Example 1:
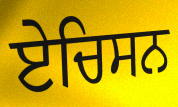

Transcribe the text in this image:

ਏਚਿਸਨ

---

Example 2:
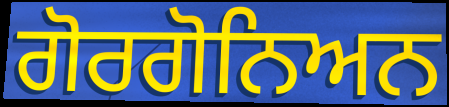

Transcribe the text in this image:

ਗੋਰਗੋਨਿਅਨ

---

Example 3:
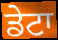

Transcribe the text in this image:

ਡੇਟਾ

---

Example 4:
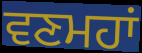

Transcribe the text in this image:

ਵਣਮਹਾਂ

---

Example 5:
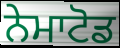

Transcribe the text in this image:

ਨੇਮਾਟੋਡ